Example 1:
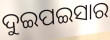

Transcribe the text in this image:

ଦୁଇପଇସାର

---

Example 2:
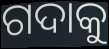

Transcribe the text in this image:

ଗଦାକୁ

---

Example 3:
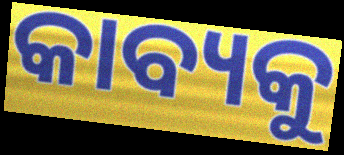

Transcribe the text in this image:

କାବ୍ୟକୁ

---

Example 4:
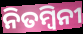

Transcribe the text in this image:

ନିତମ୍ବିନୀ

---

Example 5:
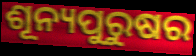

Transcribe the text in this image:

ଶୂନ୍ୟପୁରୁଷର